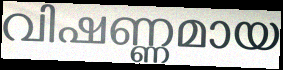
വിഷണ്ണമായ